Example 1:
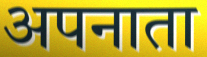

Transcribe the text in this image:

अपनाता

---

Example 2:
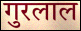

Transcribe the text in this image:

गुरलाल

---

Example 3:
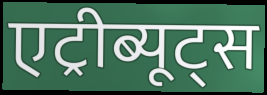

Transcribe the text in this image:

एट्रीब्यूट्स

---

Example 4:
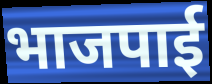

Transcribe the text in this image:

भाजपाई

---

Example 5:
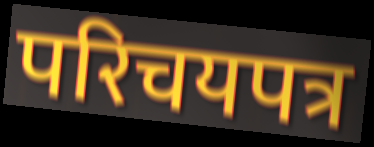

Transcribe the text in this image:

परिचयपत्र